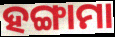
ହଙ୍ଗାମା